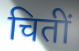
चितीं